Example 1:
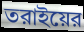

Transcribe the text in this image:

তরাইয়ের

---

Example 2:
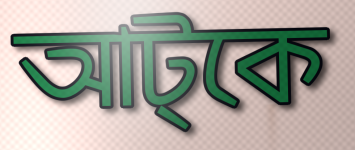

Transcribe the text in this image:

আট্‌কে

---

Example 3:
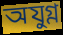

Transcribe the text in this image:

অযুগ্ন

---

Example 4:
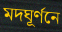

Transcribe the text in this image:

মদঘূর্ণনে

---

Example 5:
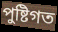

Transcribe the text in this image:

পুষ্টিগত